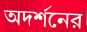
অদর্শনের